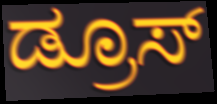
ಡ್ರೂಸ್